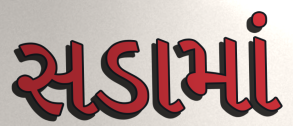
સડામાં